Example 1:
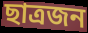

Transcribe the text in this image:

ছাত্ৰজন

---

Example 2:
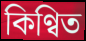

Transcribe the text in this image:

কিণ্বিত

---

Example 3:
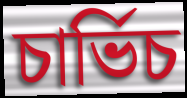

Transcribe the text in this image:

চাৰ্ভিচ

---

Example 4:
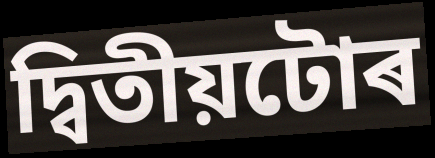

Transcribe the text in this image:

দ্বিতীয়টোৰ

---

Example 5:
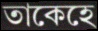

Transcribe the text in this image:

তাকেহে